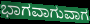
ಭಾಗವಾಗುವಾಗ